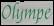
Olympe